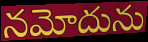
నమోదును